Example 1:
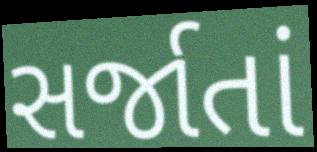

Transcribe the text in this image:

સર્જાતાં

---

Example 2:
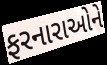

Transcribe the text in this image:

ફરનારાઓને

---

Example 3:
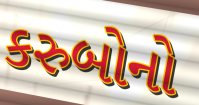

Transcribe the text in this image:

કરુબોનો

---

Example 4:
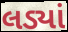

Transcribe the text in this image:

લડ્યાં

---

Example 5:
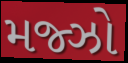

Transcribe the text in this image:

મજ્ઝો